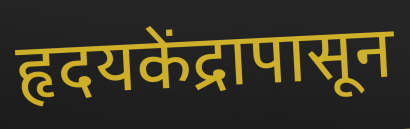
हृदयकेंद्रापासून